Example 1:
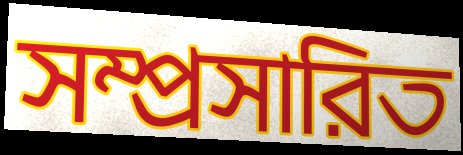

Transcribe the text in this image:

সম্প্রসারিত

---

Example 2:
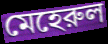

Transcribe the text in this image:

মেহেরুল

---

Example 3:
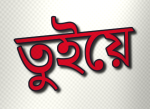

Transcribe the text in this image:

তুইয়ে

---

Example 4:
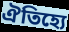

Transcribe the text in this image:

ঐতিহ্যে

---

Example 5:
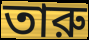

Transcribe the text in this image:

তারু